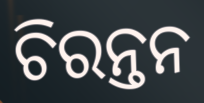
ଚିରନ୍ତନ